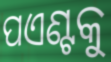
ପଏଣ୍ଟକୁ